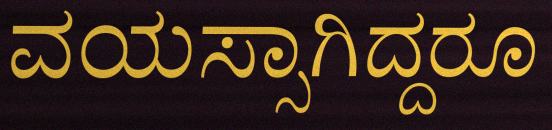
ವಯಸ್ಸಾಗಿದ್ದರೂ